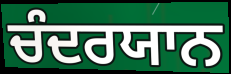
ਚੰਦਰਯਾਨ